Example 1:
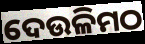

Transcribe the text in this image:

ଦେଉଳିମଠ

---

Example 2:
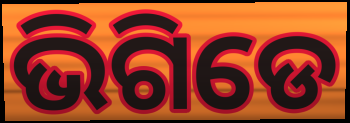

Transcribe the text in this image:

ଭିଗିଡେ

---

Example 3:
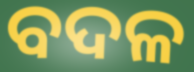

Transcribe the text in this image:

ବଦଳ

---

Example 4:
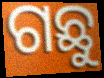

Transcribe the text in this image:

ଗଛୁ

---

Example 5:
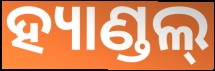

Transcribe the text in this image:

ହ୍ୟାଣ୍ଡଲ୍